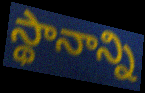
స్థానాన్ని